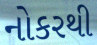
નોકરથી